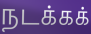
நடக்கக்